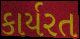
કાર્યરત